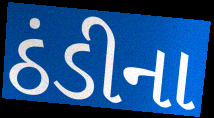
ઠંડીના